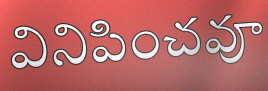
వినిపించవూ